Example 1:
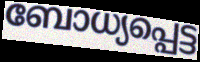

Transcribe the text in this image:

ബോധ്യപ്പെട്ട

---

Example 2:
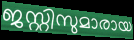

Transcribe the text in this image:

ജസ്റ്റിസുമാരായ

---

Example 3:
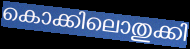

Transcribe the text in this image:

കൊക്കിലൊതുക്കി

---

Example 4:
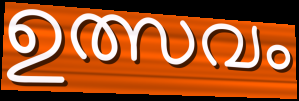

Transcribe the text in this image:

ഉത്സവം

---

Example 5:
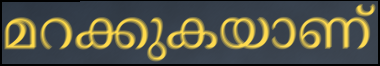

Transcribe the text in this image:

മറക്കുകയാണ്